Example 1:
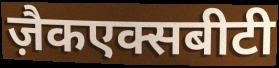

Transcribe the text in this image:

ज़ैकएक्सबीटी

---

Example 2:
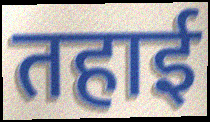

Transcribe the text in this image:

तहाई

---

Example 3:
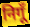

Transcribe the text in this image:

निगूँ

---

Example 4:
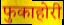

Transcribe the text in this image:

फुकाहोरी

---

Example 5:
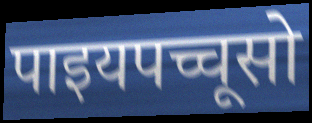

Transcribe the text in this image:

पाइयपच्चूसो